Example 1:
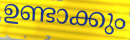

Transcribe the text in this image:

ഉണ്ടാക്കും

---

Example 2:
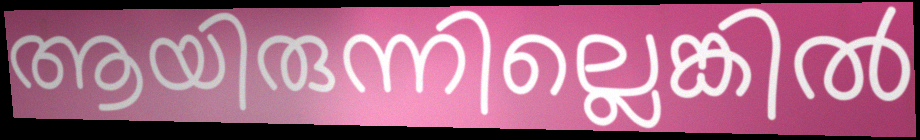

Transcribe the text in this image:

ആയിരുന്നില്ലെങ്കിൽ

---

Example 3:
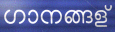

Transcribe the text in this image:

ഗാനങ്ങള്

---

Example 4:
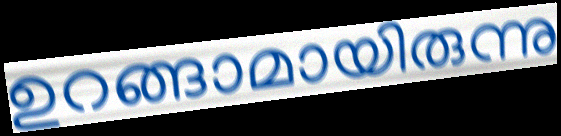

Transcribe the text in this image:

ഉറങ്ങാമായിരുന്നു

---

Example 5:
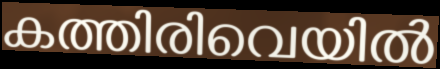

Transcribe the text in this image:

കത്തിരിവെയിൽ